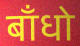
बाँधो